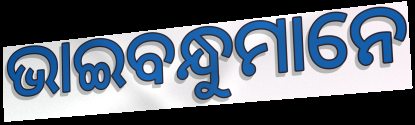
ଭାଇବନ୍ଧୁମାନେ